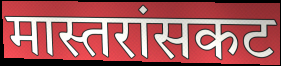
मास्तरांसकट